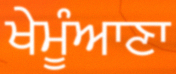
ਖੇਮੂੰਆਣਾ